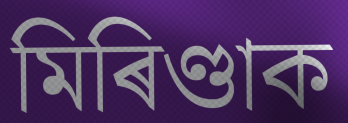
মিৰিণ্ডাক